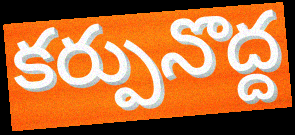
కర్పునొద్ద